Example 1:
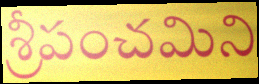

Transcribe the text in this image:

శ్రీపంచమిని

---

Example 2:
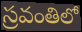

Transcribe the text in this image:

స్రవంతిలో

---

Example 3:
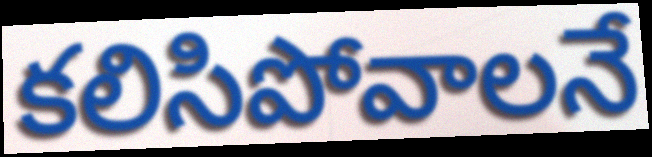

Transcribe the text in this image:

కలిసిపోవాలనే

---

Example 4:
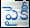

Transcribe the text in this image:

పైకీ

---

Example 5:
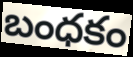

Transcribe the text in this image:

బంధకం